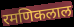
रमणिकलाल